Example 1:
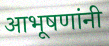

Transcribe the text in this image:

आभूषणांनी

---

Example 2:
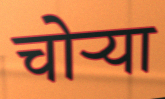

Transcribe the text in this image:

चोऱ्या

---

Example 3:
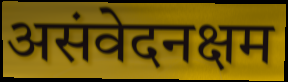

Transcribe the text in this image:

असंवेदनक्षम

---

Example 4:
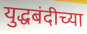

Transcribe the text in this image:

युद्धबंदीच्या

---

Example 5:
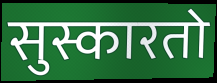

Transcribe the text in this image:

सुस्कारतो